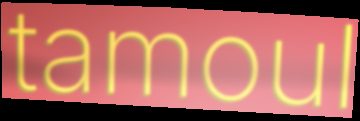
tamoul